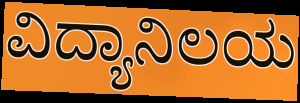
ವಿದ್ಯಾನಿಲಯ